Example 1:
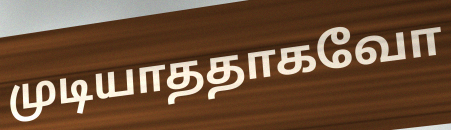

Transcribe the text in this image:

முடியாததாகவோ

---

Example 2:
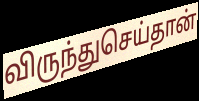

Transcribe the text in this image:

விருந்துசெய்தான்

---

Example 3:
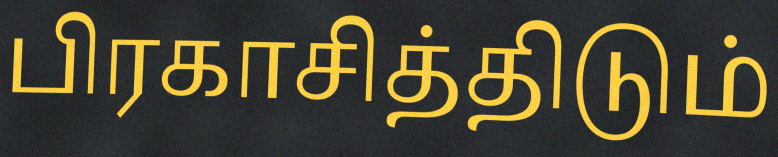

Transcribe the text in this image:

பிரகாசித்திடும்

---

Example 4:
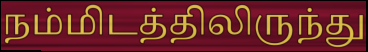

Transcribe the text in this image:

நம்மிடத்திலிருந்து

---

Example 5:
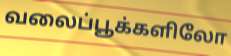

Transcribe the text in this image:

வலைப்பூக்களிலோ